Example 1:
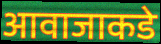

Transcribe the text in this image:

आवाजाकडे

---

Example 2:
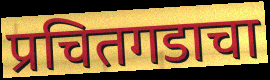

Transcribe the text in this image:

प्रचितगडाचा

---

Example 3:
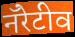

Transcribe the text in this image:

नॅरेटीव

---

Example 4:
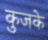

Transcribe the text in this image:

कुजके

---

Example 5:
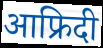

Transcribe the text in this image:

आफ्रिदी